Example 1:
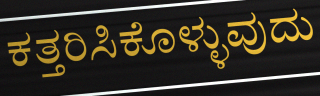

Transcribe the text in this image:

ಕತ್ತರಿಸಿಕೊಳ್ಳುವುದು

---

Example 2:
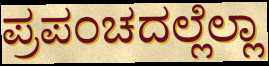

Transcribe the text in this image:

ಪ್ರಪಂಚದಲ್ಲೆಲ್ಲಾ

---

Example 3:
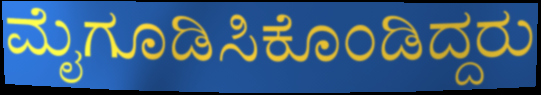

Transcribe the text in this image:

ಮೈಗೂಡಿಸಿಕೊಂಡಿದ್ದರು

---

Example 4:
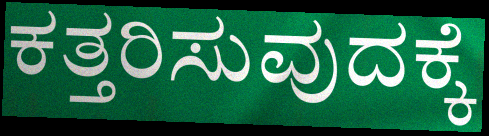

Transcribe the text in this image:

ಕತ್ತರಿಸುವುದಕ್ಕೆ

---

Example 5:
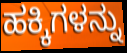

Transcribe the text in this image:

ಹಕ್ಕಿಗಳನ್ನು